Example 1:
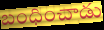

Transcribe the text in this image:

బంధించాడు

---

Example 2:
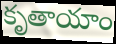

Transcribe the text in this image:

కృతాయాం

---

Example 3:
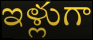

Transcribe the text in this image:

ఇళ్లుగా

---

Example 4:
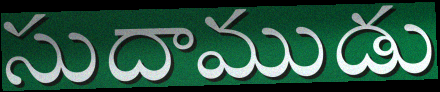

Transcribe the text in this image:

సుదాముడు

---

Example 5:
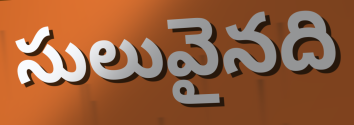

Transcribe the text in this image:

సులువైనది